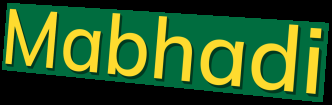
Mabhadi